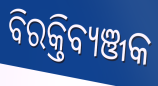
ବିରକ୍ତିବ୍ୟଞ୍ଜକ